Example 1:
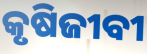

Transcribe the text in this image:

କୃଷିଜୀବୀ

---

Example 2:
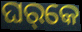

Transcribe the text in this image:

ଘର୍‌କେ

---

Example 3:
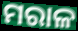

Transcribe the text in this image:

ମରାଳ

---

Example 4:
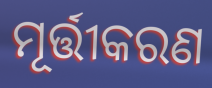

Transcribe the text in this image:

ମୂର୍ତ୍ତୀକରଣ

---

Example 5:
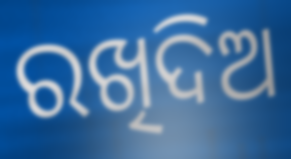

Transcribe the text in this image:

ରଖିଦିଅ